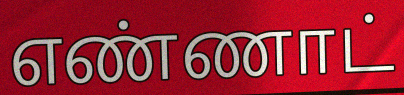
எண்ணாட்